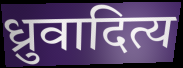
ध्रुवादित्य